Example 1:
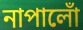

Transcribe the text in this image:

নাপালোঁ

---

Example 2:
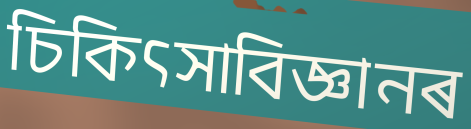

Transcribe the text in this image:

চিকিৎসাবিজ্ঞানৰ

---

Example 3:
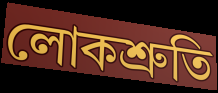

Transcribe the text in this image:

লোকশ্ৰুতি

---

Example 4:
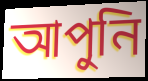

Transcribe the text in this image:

আপুনি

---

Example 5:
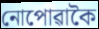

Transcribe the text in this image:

নোপোৱাকৈ